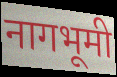
नागभूमी